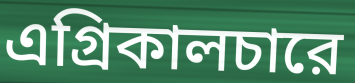
এগ্রিকালচারে